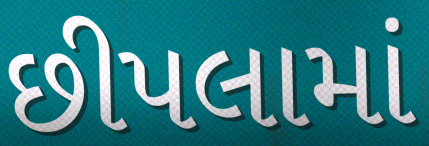
છીપલામાં